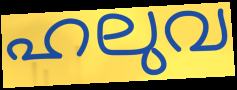
ഹലുവ